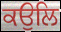
ਕਉਲਿ